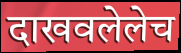
दाखवलेलेच